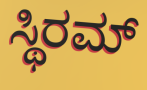
ಸ್ಥಿರಮ್